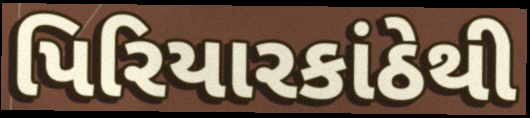
પિરિયારકાંઠેથી